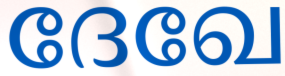
ദേഖേ